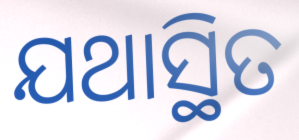
ଯଥାସ୍ଥିତ